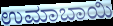
ಉಮಾಬಾಯಿ